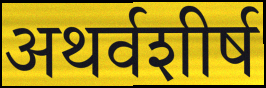
अथर्वशीर्ष